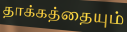
தாக்கத்தையும்